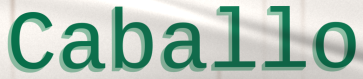
Caballo